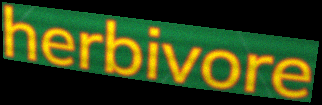
herbivore